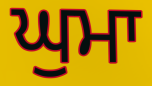
ਘੁਮਾ